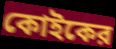
কোইকের